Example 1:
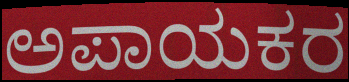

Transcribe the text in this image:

ಅಪಾಯಕರ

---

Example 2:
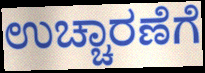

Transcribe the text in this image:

ಉಚ್ಚಾರಣೆಗೆ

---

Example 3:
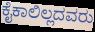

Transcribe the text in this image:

ಕೈಕಾಲಿಲ್ಲದವರು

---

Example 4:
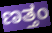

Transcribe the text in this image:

ಣತ್ತಂ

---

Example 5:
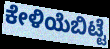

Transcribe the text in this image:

ಕೇಳಿಯೆಬಿಟ್ಟೆ